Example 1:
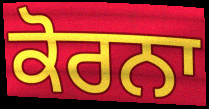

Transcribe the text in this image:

ਕੋਰਨਾ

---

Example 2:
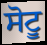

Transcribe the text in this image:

ਸੋਟੂ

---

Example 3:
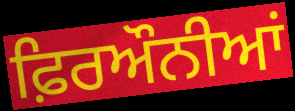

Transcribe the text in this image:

ਫ਼ਿਰਔਨੀਆਂ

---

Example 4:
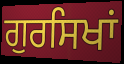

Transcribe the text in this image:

ਗੁਰਸਿਖਾਂ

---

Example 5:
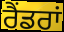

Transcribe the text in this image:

ਰੈਂਡਰਾਂ